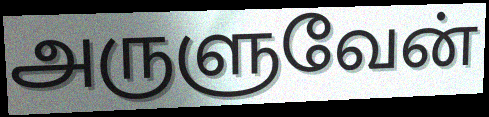
அருளுவேன்